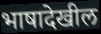
भाषादेखील